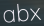
abx